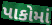
પાકોમાં